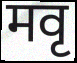
मवृ